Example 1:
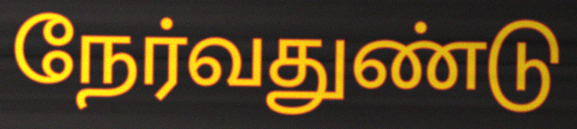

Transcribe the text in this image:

நேர்வதுண்டு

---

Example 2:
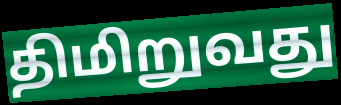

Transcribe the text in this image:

திமிறுவது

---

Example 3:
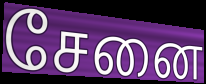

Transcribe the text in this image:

சேனை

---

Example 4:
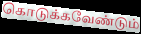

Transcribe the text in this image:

கொடுக்கவேண்டும்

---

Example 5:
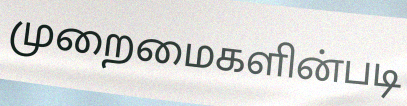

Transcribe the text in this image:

முறைமைகளின்படி